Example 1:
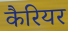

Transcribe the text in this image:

कैरियर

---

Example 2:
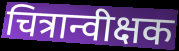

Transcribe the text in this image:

चित्रान्वीक्षक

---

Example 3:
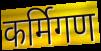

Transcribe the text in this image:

कर्मिगण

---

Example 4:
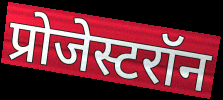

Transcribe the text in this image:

प्रोजेस्टरॉन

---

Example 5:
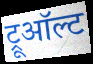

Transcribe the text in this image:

ट्रूऑल्ट